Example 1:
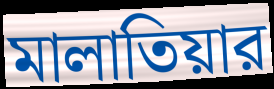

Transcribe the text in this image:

মালাতিয়ার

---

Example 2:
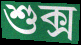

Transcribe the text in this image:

শুক্স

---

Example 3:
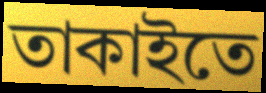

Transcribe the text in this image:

তাকাইতে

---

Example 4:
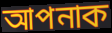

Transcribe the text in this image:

আপনাক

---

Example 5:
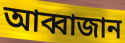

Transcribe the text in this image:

আব্বাজান